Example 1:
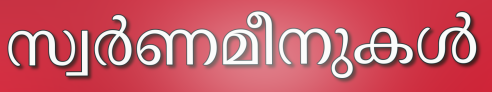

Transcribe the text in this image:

സ്വർണമീനുകൾ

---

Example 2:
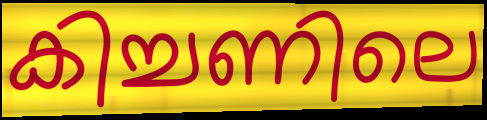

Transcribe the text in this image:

കിച്ചണിലെ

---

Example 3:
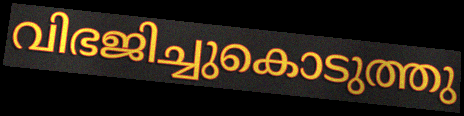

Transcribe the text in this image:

വിഭജിച്ചുകൊടുത്തു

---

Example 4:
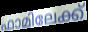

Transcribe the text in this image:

ഫാമിലേക്ക്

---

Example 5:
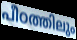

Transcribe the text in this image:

പീഠത്തിലും